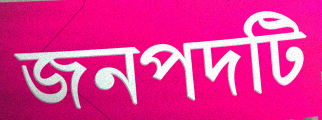
জনপদটি